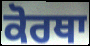
ਕੋਰਥਾ